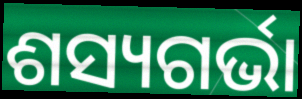
ଶସ୍ୟଗର୍ଭା